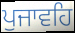
ਪੁਜਾਵਹਿ